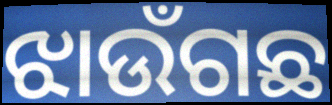
ଝାଉଁଗଛ